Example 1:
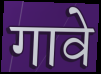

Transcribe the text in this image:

गावे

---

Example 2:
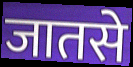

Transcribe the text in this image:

जातसे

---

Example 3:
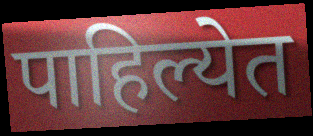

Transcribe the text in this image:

पाहिल्येत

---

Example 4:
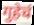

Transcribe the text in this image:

गुहेचं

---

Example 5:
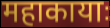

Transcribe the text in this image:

महाकायाः